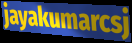
jayakumarcsj